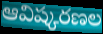
ఆవిష్కరణల